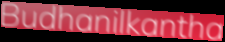
Budhanilkantha